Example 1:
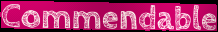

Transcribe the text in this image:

Commendable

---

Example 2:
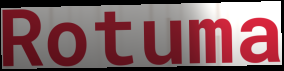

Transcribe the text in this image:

Rotuma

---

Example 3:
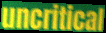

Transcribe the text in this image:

uncritical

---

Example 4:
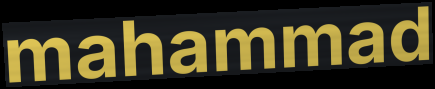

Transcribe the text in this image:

mahammad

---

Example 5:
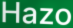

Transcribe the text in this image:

Hazo